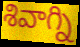
శివాగ్ని